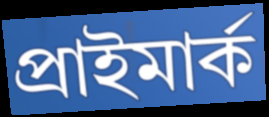
প্রাইমার্ক